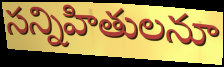
సన్నిహితులనూ